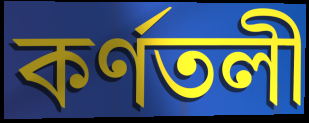
কর্ণতলী